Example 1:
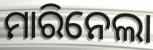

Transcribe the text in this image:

ମାରିନେଲା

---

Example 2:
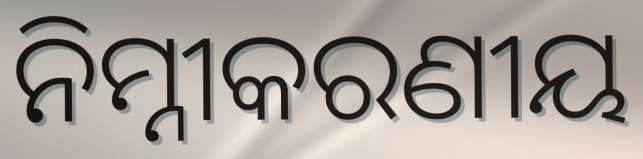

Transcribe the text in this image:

ନିମ୍ନୀକରଣୀୟ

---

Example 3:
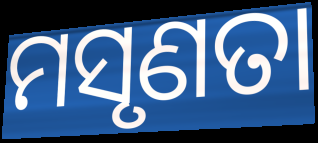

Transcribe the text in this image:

ମସୃଣତା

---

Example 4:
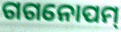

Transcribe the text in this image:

ଗଗନୋପମ୍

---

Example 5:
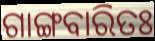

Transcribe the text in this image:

ଗାଙ୍ଗବାରିତଃ